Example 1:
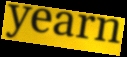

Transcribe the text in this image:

yearn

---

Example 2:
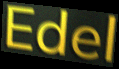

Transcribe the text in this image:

Edel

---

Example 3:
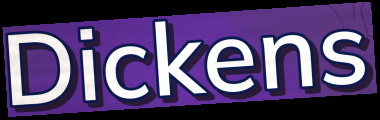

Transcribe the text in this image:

Dickens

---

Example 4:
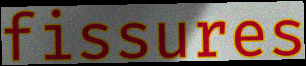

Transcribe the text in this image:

fissures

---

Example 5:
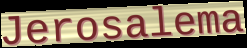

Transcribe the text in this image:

Jerosalema